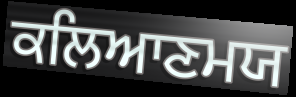
ਕਲਿਆਣਮਯ